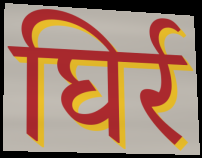
घिर्र